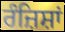
ਰੰਜ਼ਿਸ਼ਾਂ